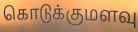
கொடுக்குமளவு